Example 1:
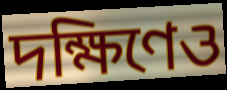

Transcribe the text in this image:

দক্ষিণেও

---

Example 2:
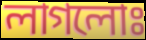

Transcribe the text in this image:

লাগলোঃ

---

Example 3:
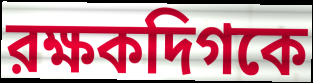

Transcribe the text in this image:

রক্ষকদিগকে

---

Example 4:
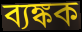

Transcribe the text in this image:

ব্যঙ্কক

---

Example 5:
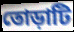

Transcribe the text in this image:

তোড়াটি